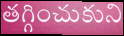
తగ్గించుకుని